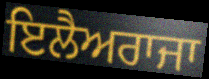
ਇਲੈਅਰਾਜਾ